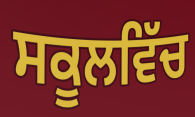
ਸਕੂਲਵਿੱਚ